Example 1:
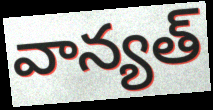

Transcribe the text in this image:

వాన్యత్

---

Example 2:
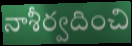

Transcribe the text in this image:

నాశీర్వదించి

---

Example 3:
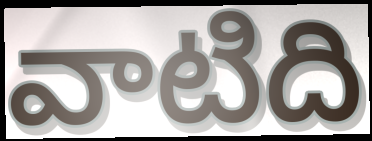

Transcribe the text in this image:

వాటిది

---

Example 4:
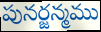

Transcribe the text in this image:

పునర్జన్మము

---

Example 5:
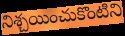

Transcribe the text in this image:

నిశ్చయించుకొంటిని